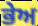
ਭੇਅ